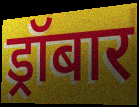
ड्रॉबार